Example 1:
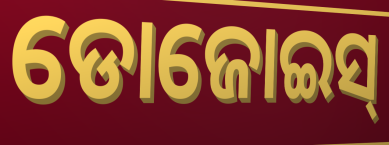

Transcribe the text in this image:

ଡୋଜୋଇସ୍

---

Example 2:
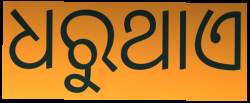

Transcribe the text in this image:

ଧରୁଥାଏ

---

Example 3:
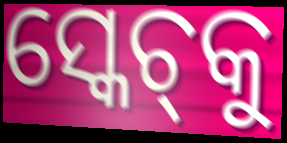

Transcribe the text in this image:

ସ୍କେଚ୍‌କୁ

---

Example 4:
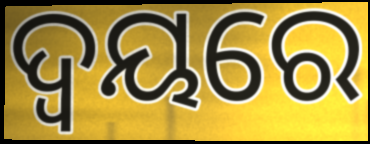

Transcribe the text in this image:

ଦ୍ୱୟରେ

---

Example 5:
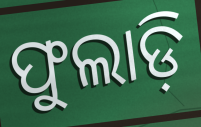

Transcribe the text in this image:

ଫୁଲାଡ଼ି